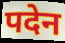
पदेन